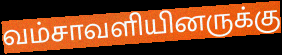
வம்சாவளியினருக்கு